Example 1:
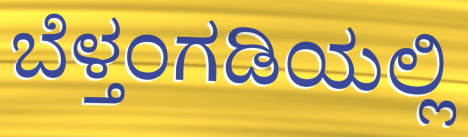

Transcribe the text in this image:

ಬೆಳ್ತಂಗಡಿಯಲ್ಲಿ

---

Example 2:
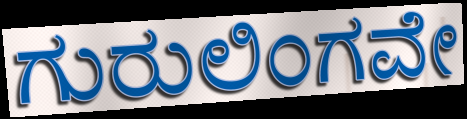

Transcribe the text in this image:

ಗುರುಲಿಂಗವೇ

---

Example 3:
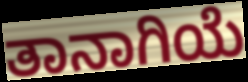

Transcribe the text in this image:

ತಾನಾಗಿಯೆ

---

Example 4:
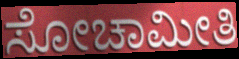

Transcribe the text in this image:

ಸೋಚಾಮೀತಿ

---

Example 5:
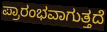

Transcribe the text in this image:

ಪ್ರಾರಂಭವಾಗುತ್ತದೆ